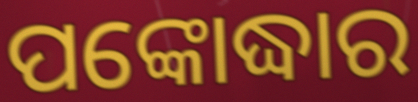
ପଙ୍କୋଦ୍ଧାର